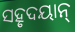
ସହୃଦୟାନ୍